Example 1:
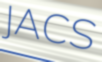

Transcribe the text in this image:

JACS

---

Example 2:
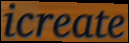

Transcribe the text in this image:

icreate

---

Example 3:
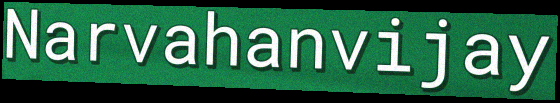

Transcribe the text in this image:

Narvahanvijay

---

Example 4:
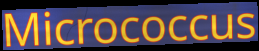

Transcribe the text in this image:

Micrococcus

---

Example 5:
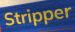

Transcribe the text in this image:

Stripper